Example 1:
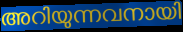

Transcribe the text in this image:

അറിയുന്നവനായി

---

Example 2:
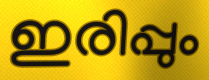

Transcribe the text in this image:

ഇരിപ്പും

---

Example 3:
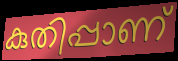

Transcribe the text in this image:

കുതിപ്പാണ്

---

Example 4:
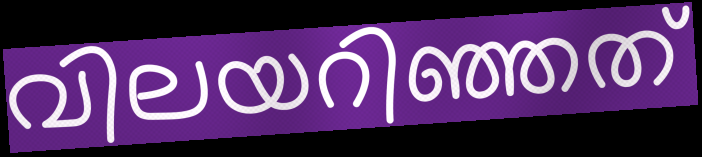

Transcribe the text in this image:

വിലയറിഞ്ഞത്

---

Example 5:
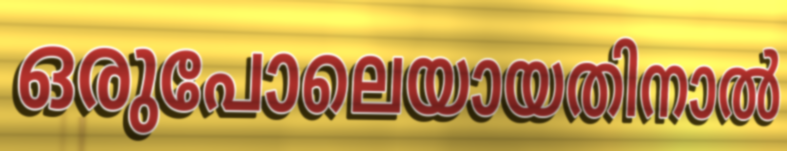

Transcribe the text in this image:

ഒരുപോലെയായതിനാൽ